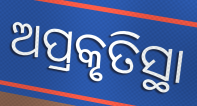
ଅପ୍ରକୃତିସ୍ଥା